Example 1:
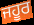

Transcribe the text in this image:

ਜਹੂਰ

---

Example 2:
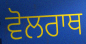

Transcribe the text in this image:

ਵੋਲਰਾਥ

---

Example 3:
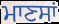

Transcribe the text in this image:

ਮਾਣਸਾਂ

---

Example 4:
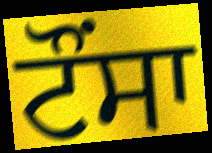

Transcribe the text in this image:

ਟੌਂਸਾ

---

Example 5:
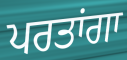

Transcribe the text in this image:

ਪਰਤਾਂਗਾ